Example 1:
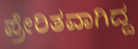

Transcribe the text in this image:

ಪ್ರೇರಿತವಾಗಿದ್ದ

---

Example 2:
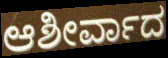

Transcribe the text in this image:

ಆಶೀರ್ವಾದ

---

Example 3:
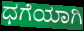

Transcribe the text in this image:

ಧಗೆಯಾಗಿ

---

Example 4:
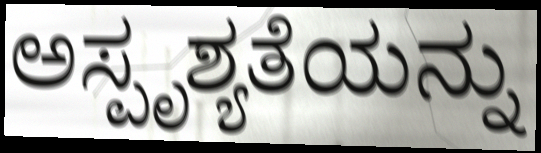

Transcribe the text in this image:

ಅಸ್ಪೃಶ್ಯತೆಯನ್ನು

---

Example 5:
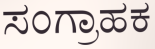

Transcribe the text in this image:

ಸಂಗ್ರಾಹಕ